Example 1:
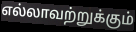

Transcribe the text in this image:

எல்லாவற்றுக்கும்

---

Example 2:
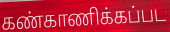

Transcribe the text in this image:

கண்காணிக்கப்பட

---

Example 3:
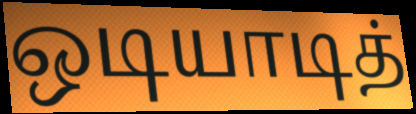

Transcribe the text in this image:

ஒடியாடித்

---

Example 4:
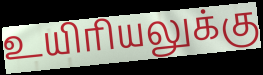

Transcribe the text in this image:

உயிரியலுக்கு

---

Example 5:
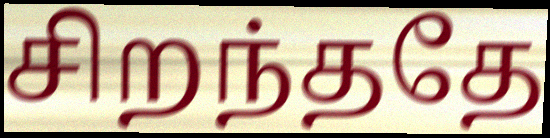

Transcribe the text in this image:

சிறந்ததே